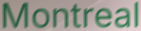
Montreal